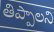
తిప్పాలని